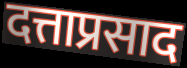
दत्ताप्रसाद